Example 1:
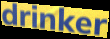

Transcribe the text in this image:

drinker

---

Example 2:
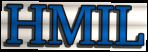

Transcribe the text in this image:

HMIL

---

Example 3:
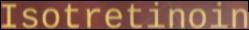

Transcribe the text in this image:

Isotretinoin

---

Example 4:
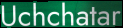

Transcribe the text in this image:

Uchchatar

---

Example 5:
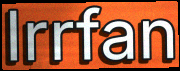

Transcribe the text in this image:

Irrfan